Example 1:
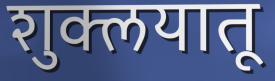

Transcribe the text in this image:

शुक्लयातू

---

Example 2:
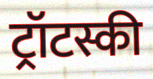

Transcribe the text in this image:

ट्रॉटस्की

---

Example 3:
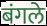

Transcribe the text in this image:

बंगले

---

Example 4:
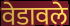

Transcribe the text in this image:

वेडावले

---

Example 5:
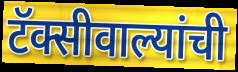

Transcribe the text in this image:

टॅक्सीवाल्यांची